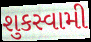
શુકસ્વામી